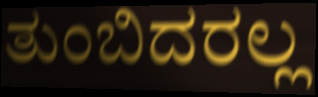
ತುಂಬಿದರಲ್ಲ